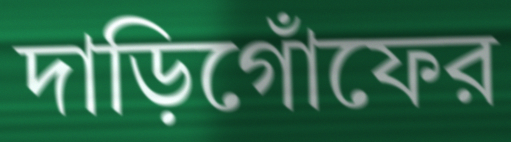
দাড়িগোঁফের